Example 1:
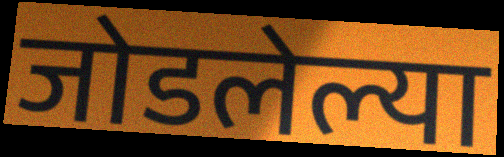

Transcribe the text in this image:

जोडलेल्या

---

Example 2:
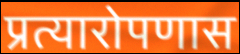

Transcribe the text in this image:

प्रत्यारोपणास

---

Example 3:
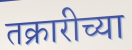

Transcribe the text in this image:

तक्रारीच्या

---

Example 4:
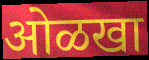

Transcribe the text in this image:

ओळखा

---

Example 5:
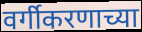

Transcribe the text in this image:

वर्गीकरणाच्या